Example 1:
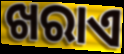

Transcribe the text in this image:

ଖରାଏ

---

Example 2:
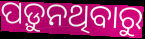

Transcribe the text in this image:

ପଡ଼ୁନଥିବାରୁ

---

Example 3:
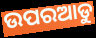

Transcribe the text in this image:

ଉପରଆଡୁ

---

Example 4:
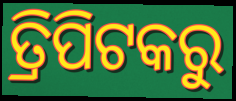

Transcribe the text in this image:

ତ୍ରିପିଟକରୁ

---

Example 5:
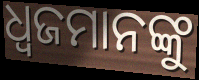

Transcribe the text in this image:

ଧ୍ୱଜମାନଙ୍କୁ